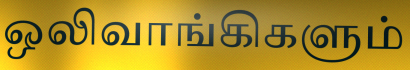
ஒலிவாங்கிகளும்